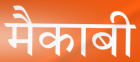
मैकाबी